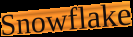
Snowflake